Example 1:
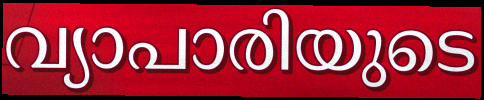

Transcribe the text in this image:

വ്യാപാരിയുടെ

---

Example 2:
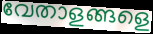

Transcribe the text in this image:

വേതാളങ്ങളെ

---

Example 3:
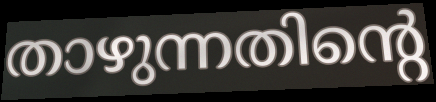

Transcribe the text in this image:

താഴുന്നതിന്റെ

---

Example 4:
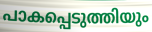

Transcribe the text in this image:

പാകപ്പെടുത്തിയും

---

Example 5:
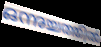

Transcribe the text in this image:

ഒന്നുച്ചത്തിൽ